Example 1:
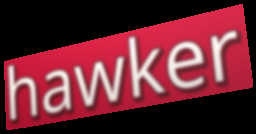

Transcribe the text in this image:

hawker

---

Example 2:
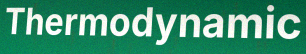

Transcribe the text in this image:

Thermodynamic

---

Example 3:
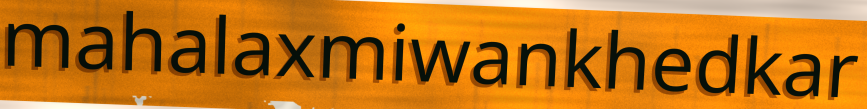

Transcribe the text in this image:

mahalaxmiwankhedkar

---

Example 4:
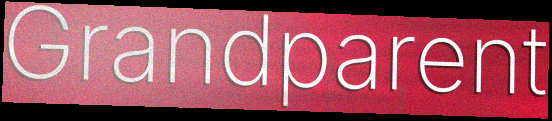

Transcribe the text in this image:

Grandparent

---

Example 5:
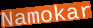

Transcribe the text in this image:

Namokar